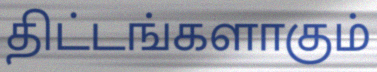
திட்டங்களாகும்